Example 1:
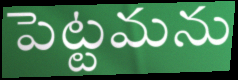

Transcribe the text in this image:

పెట్టమను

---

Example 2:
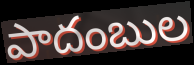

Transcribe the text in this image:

పాదంబుల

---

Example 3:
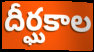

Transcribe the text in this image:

దీర్ఘకాల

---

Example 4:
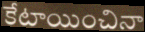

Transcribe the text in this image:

కేటాయించినా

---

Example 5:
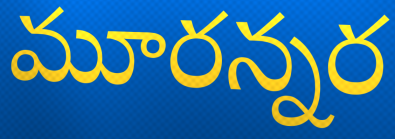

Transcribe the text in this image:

మూరన్నర